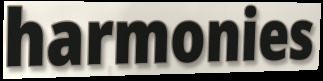
harmonies